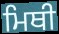
ਮਿਥੀ